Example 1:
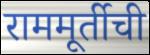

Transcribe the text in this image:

राममूर्तीची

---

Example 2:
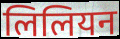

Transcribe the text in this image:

लिलियन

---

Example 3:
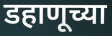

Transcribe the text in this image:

डहाणूच्या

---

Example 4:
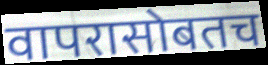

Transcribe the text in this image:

वापरासोबतच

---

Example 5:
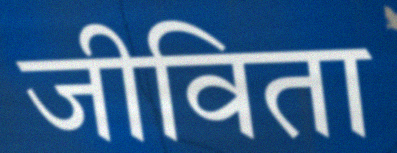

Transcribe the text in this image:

जीविता